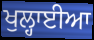
ਖੁਲ੍ਹਾਈਆ